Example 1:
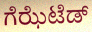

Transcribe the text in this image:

ಗೆಝೆಟೆಡ್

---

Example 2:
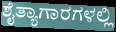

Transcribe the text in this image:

ಶೈತ್ಯಾಗಾರಗಳಲ್ಲಿ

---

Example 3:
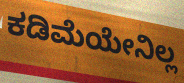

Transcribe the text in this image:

ಕಡಿಮೆಯೇನಿಲ್ಲ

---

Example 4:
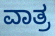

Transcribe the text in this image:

ವಾತ್ರ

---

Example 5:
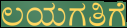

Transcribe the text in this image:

ಲಯಗತಿಗೆ